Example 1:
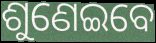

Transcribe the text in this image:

ଶୁଣେଇବେ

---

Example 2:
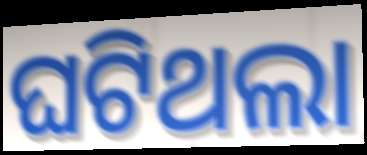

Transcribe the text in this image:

ଘଟିଥଲା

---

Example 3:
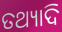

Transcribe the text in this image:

ତଥ୍ୟାଦି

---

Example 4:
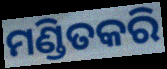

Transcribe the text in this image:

ମଣ୍ଡିତକରି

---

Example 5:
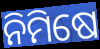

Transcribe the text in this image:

ନିମିଷେ